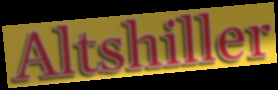
Altshiller